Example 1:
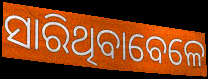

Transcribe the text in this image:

ସାରିଥିବାବେଳେ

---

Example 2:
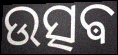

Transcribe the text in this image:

ଉତ୍ସଵ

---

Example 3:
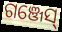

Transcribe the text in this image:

ଗଞ୍ଜେସ୍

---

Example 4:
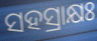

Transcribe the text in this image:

ସହସ୍ରାକ୍ଷଃ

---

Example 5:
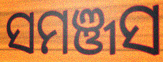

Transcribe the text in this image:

ସମଞ୍ଜସ